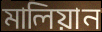
মালিয়ান